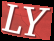
LY